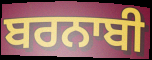
ਬਰਨਾਬੀ